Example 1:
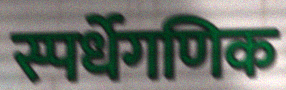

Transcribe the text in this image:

स्पर्धेगणिक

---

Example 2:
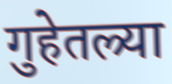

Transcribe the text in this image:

गुहेतल्या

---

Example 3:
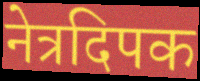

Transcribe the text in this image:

नेत्रदिपक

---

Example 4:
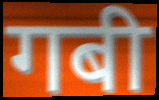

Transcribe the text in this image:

गबी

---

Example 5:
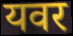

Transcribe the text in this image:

यवर